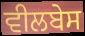
ਵੀਲਬੇਸ